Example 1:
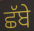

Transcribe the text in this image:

ਛੱਬੇ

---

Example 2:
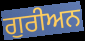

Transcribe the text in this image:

ਗੁਰੀਅਨ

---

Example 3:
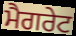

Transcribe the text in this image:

ਮੈਗਰੇਟ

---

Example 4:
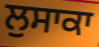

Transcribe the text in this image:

ਲੁਸਾਕਾ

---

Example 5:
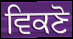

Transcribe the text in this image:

ਵਿਕਣੋ